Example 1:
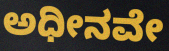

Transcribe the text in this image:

ಅಧೀನವೇ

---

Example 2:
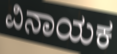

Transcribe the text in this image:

ವಿನಾಯಕ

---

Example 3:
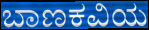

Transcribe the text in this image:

ಬಾಣಕವಿಯ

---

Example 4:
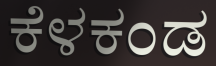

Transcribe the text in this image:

ಕೆಳಕಂಡ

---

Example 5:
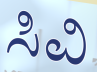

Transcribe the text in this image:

ಸಿವಿ